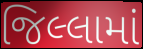
જિલ્લામાં